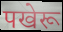
पखेरू